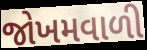
જોખમવાળી